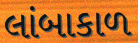
લાંબાકાળ